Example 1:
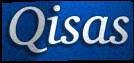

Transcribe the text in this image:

Qisas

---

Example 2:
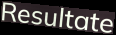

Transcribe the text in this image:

Resultate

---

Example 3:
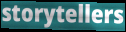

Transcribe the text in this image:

storytellers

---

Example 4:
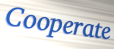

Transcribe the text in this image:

Cooperate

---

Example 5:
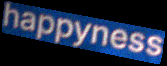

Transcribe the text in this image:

happyness